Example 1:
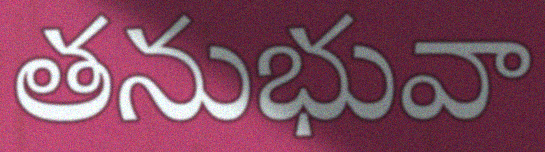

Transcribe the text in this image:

తనుభువా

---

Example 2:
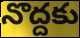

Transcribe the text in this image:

నొద్దకు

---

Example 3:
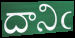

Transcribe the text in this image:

దానిఁ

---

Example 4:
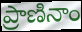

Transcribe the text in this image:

ప్రాణినాం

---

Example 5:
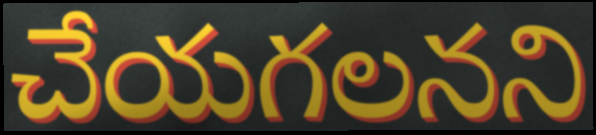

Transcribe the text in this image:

చేయగలనని